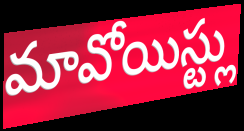
మావోయిస్ట్లు